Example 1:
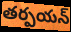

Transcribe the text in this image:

తర్పయన్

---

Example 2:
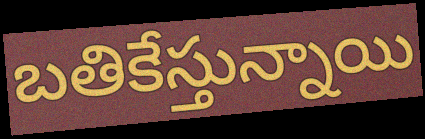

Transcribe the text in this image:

బతికేస్తున్నాయి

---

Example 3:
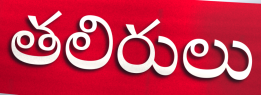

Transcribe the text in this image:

తలిరులు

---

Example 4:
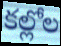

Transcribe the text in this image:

కల్లోల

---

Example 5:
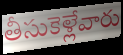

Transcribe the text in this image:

తీసుకెళ్లేవారు